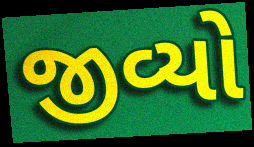
જીવ્યો